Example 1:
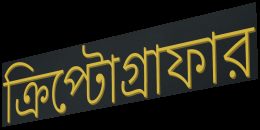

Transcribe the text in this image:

ক্রিপ্টোগ্রাফার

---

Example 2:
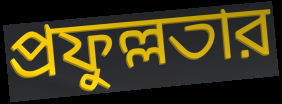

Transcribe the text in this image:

প্রফুল্লতার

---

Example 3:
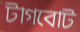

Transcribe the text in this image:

টাগবোট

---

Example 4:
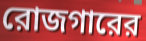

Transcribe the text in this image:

রোজগারের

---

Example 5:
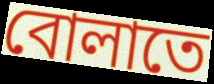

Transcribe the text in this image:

বোলাতে